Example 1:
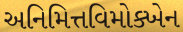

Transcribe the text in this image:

અનિમિત્તવિમોક્ખેન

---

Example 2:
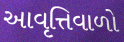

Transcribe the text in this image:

આવૃત્તિવાળો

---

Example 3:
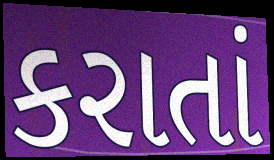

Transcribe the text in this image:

કરાતાં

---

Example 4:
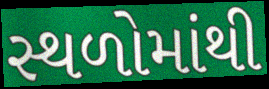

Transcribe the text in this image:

સ્થળોમાંથી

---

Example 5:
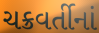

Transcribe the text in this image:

ચક્રવર્તીનાં